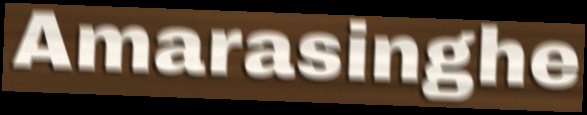
Amarasinghe